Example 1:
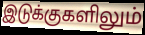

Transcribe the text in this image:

இடுக்குகளிலும்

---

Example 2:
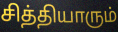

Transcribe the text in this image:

சித்தியாரும்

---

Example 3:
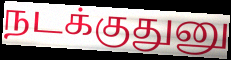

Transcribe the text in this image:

நடக்குதுனு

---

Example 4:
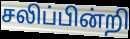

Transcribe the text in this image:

சலிப்பின்றி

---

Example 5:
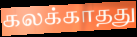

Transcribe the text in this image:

கலக்காதது